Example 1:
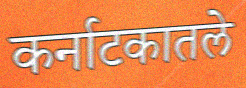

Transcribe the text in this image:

कर्नाटकातले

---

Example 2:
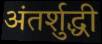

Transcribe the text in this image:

अंतर्शुद्धी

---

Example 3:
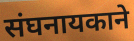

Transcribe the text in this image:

संघनायकाने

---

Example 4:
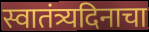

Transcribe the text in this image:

स्वातंत्र्यदिनाचा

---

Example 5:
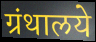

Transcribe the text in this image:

ग्रंथालये